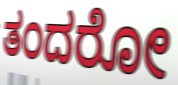
ತಂದರೋ